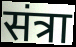
संत्रा